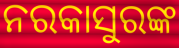
ନରକାସୁରଙ୍କ